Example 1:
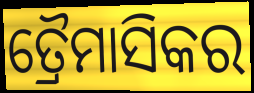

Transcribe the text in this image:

ତ୍ରୈମାସିକର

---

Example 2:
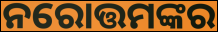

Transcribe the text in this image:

ନରୋତ୍ତମଙ୍କର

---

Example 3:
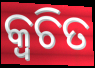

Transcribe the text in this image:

କ୍ୱଚିତ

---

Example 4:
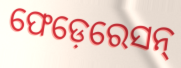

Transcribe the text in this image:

ଫେଡ଼େରେସନ୍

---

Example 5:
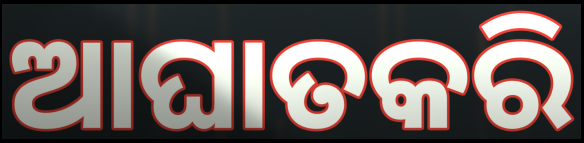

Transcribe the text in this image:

ଆଘାତକରି